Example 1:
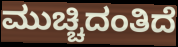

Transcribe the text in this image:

ಮುಚ್ಚಿದಂತಿದೆ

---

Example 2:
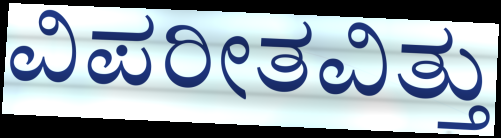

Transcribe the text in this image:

ವಿಪರೀತವಿತ್ತು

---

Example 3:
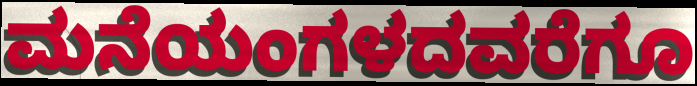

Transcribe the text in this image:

ಮನೆಯಂಗಳದವರೆಗೂ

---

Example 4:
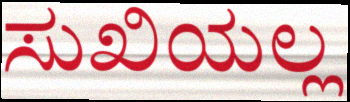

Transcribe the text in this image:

ಸುಖಿಯಲ್ಲ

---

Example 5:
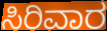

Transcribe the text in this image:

ಸಿರಿವಾರ